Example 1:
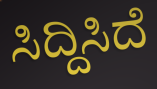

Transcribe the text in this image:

ಸಿದ್ದಿಸಿದೆ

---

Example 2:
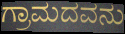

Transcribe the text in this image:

ಗ್ರಾಮದವನು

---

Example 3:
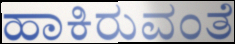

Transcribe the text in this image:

ಹಾಕಿರುವಂತೆ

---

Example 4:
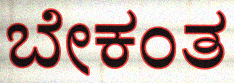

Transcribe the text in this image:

ಬೇಕಂತ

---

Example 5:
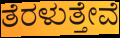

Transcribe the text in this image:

ತೆರಳುತ್ತೇವೆ